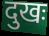
दुखः